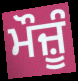
ਮੌਜ਼ੂੰ